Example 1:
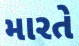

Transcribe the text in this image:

મારતે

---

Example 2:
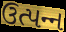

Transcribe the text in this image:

ઉત્પન્‍ન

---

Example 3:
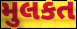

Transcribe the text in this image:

મુલકત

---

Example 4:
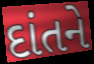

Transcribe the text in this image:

દાંતને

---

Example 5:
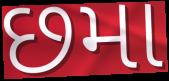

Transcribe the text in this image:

છમા